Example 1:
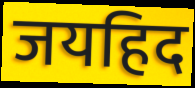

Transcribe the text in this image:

जयहिद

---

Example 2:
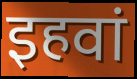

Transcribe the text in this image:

इहवां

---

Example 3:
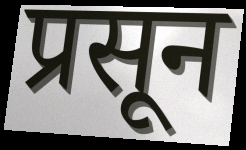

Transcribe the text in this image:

प्रसून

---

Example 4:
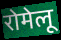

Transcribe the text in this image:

रोमेलू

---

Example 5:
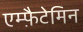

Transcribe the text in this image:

एम्फ़ैटेमिन